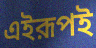
এইরূপই